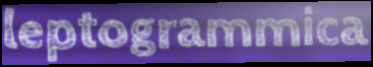
leptogrammica